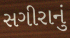
સગીરાનું